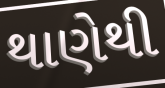
થાણેથી